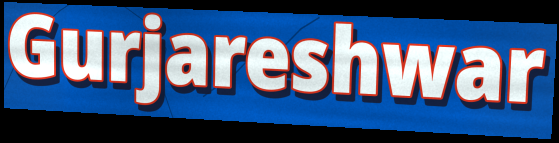
Gurjareshwar